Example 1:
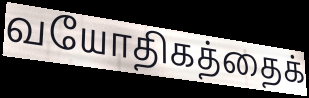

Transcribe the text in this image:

வயோதிகத்தைக்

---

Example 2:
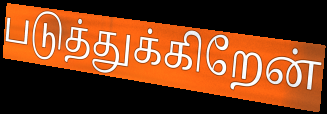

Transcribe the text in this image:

படுத்துக்கிறேன்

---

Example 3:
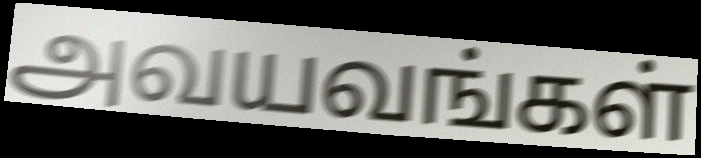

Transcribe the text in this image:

அவயவங்கள்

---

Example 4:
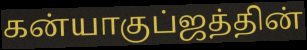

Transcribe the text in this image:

கன்யாகுப்ஜத்தின்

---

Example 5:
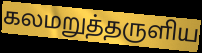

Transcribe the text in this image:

கலமறுத்தருளிய